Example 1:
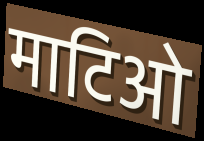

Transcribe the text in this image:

माटिओ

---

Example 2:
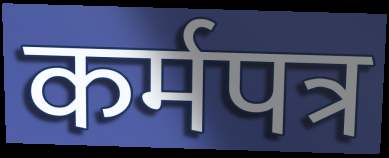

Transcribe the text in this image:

कर्मपत्र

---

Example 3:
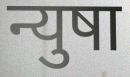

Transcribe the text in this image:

न्युषा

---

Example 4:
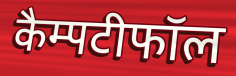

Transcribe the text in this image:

कैम्पटीफॉल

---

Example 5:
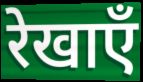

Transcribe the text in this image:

रेखाएँ